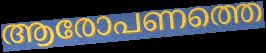
ആരോപണത്തെ